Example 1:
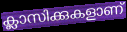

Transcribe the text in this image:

ക്ലാസിക്കുകളാണ്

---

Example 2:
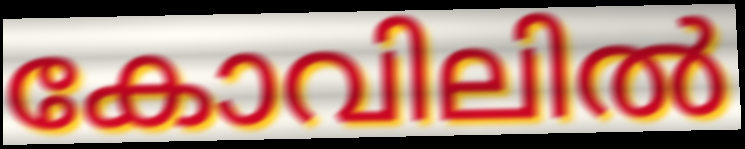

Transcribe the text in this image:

കോവിലിൽ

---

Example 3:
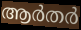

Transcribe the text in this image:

ആർതർ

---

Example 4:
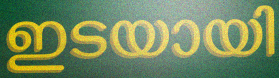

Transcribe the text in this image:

ഇടയായി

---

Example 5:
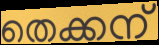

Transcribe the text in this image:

തെക്കന്